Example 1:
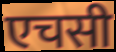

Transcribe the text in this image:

एचसी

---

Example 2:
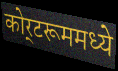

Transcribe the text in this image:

कोर्टरूममध्ये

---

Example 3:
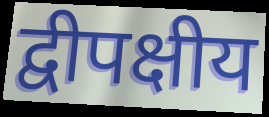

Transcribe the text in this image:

द्वीपक्षीय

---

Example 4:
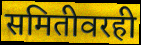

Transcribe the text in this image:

समितीवरही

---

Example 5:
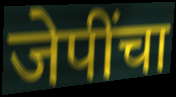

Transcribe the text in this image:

जेपींचा